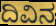
ದಿವಿನ